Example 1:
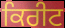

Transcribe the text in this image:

ਕਿਰੀਟ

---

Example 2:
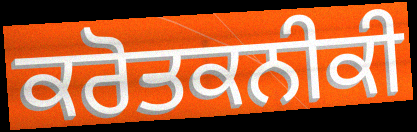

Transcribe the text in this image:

ਕਰੋਤਕਨੀਕੀ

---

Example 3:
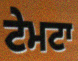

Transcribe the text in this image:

ਟੇਮਟਾ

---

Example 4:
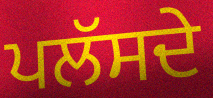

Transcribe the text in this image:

ਪਲੱਸਦੇ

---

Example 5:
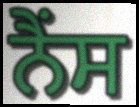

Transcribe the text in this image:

ਨੈਂਸ